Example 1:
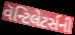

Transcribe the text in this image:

વૅન્ટિલેટર્સની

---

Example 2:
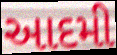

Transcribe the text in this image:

આદમી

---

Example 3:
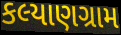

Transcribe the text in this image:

કલ્યાણગ્રામ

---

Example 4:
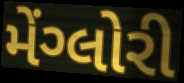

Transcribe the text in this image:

મેંગ્લોરી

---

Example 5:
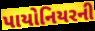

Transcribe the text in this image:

પાયોનિયરની